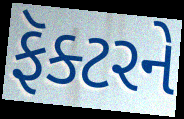
ફૅક્ટરને